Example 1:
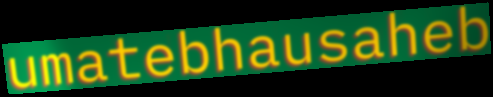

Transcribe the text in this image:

umatebhausaheb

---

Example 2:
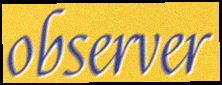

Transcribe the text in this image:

observer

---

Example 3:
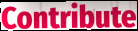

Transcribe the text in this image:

Contribute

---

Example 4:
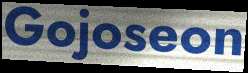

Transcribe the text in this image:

Gojoseon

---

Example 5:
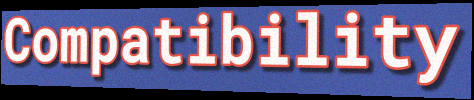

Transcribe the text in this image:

Compatibility